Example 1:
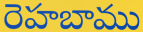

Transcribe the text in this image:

రెహబాము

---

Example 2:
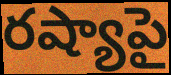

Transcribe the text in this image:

రష్యాపై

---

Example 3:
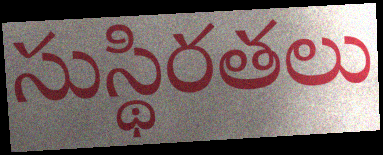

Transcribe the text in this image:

సుస్థిరతలు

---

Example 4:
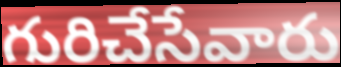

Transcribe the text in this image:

గురిచేసేవారు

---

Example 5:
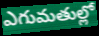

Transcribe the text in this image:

ఎగుమతుల్లో